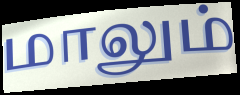
மாலும்